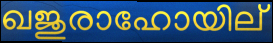
ഖജുരാഹോയില്